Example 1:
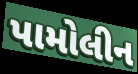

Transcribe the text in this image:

પામોલીન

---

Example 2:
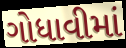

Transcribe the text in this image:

ગોધાવીમાં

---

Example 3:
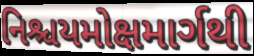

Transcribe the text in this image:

નિશ્ચયમોક્ષમાર્ગથી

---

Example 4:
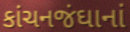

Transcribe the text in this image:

કાંચનજંઘાનાં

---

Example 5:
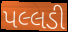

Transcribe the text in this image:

પલ્લડી